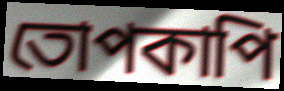
তোপকাপি